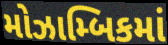
મોઝામ્બિકમાં